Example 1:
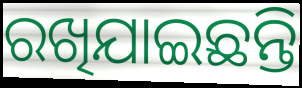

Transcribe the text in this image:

ରଖିଯାଇଛନ୍ତି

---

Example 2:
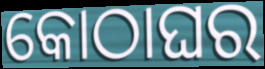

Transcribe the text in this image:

କୋଠାଘର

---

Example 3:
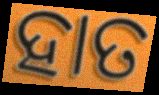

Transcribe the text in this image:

ହାତ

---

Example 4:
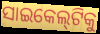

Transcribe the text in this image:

ସାଇକେଲ୍‌ଟିକୁ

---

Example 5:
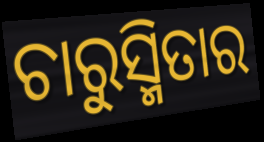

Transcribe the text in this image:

ଚାରୁସ୍ମିତାର